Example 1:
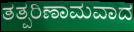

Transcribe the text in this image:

ತತ್ಪರಿಣಾಮವಾದ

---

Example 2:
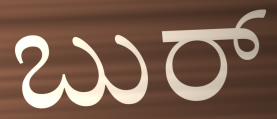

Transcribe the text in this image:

ಬುರ್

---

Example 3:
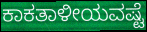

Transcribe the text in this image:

ಕಾಕತಾಳೀಯವಷ್ಟೆ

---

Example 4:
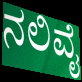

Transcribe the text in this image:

ನಲಿವೈ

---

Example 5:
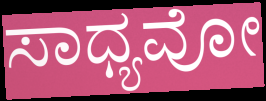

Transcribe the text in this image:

ಸಾಧ್ಯವೋ